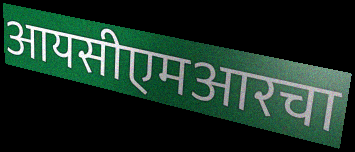
आयसीएमआरचा